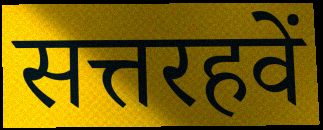
सत्तरहवें